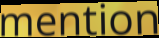
mention